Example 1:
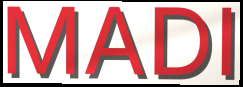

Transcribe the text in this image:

MADI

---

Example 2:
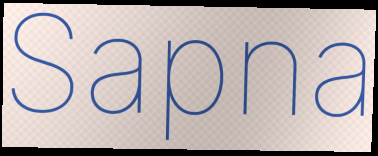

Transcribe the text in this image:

Sapna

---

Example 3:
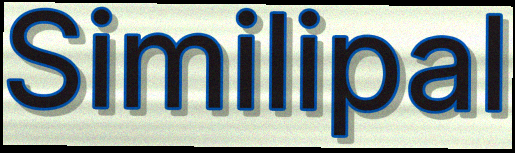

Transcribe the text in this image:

Similipal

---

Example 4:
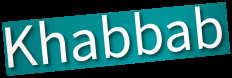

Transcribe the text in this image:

Khabbab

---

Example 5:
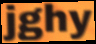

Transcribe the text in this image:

jghy